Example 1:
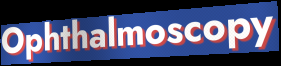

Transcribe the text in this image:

Ophthalmoscopy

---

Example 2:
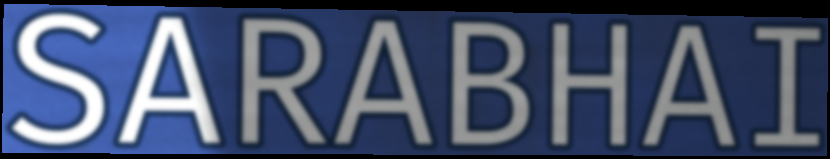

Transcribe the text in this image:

SARABHAI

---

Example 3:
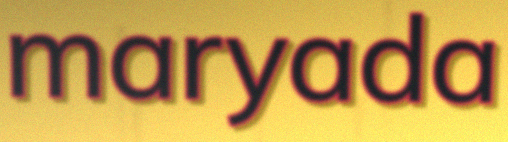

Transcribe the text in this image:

maryada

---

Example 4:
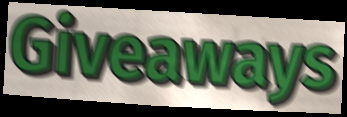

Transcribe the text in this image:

Giveaways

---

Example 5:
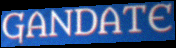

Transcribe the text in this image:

GANDATE